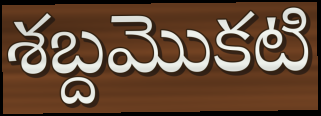
శబ్దమొకటి